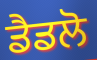
ਡੈਡਲੋ